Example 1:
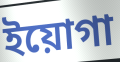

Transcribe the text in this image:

ইয়োগা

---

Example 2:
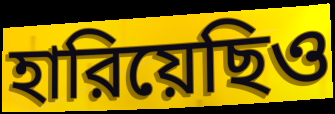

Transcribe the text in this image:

হারিয়েছিও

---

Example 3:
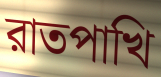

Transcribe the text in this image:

রাতপাখি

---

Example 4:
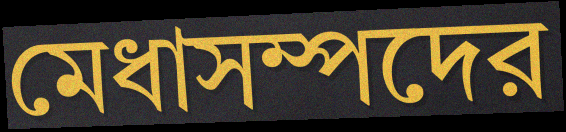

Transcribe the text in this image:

মেধাসম্পদের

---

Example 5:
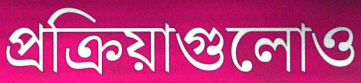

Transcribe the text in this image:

প্রক্রিয়াগুলোও